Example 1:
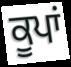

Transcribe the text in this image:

ਕੂਪਾਂ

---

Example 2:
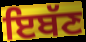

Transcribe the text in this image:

ਇਬੱਣ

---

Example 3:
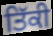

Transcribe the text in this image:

ਤਿੱਕੀ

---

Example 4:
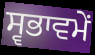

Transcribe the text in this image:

ਸ੍ਵਭਾਵਮੇਂ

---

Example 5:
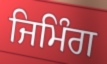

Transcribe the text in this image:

ਜਿਮਿੰਗ